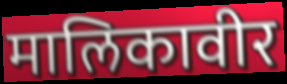
मालिकावीर